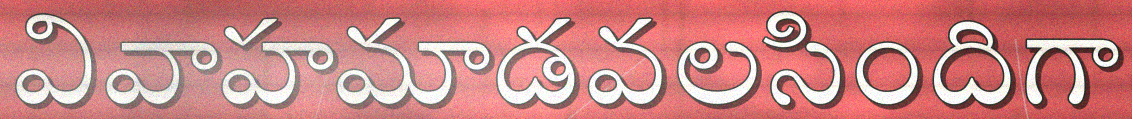
వివాహమాడవలసిందిగా